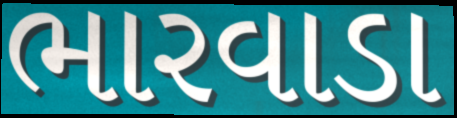
ભારવાડા